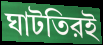
ঘাটতিরই